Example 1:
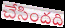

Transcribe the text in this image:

చేసిందది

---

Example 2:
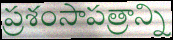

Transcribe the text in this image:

ప్రశంసాపత్రాన్ని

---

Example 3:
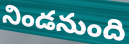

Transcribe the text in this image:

నిండనుంది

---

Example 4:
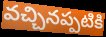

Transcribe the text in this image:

వచ్చినప్పటికి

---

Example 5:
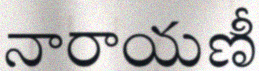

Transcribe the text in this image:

నారాయణీ